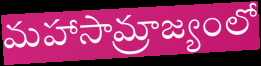
మహాసామ్రాజ్యంలో